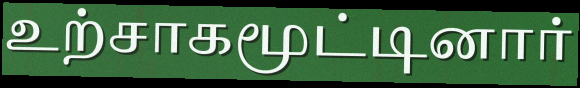
உற்சாகமூட்டினார்